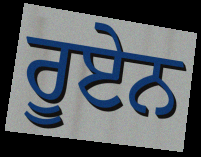
ਰੂਏਨ